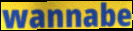
wannabe